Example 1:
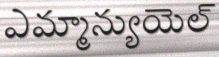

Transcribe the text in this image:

ఎమ్మాన్యుయెల్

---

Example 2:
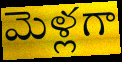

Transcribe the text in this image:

మెళ్లగా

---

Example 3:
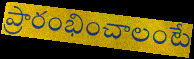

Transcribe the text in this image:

ప్రారంభించాలంటే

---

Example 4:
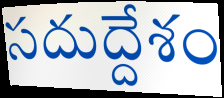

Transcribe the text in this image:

సదుద్దేశం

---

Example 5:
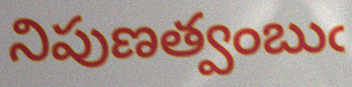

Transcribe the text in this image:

నిపుణత్వంబుఁ